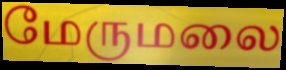
மேருமலை